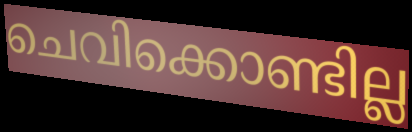
ചെവിക്കൊണ്ടില്ല